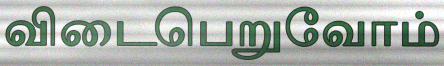
விடைபெறுவோம்